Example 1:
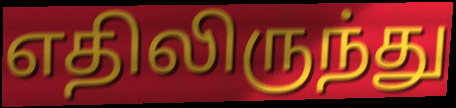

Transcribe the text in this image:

எதிலிருந்து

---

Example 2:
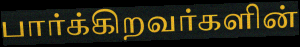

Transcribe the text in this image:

பார்க்கிறவர்களின்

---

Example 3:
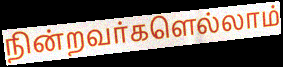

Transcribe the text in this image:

நின்றவர்களெல்லாம்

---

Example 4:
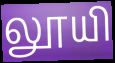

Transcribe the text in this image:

லூயி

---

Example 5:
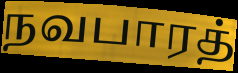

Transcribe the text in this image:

நவபாரத்